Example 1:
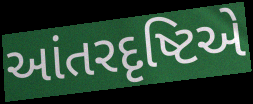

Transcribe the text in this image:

આંતરદૃષ્ટિએ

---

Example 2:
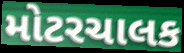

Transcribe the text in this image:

મોટરચાલક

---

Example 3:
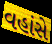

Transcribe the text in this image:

વહાંસે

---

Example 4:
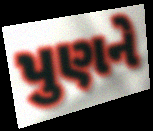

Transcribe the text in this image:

પુણને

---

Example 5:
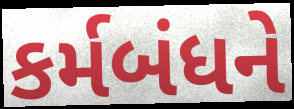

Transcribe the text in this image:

કર્મબંધને